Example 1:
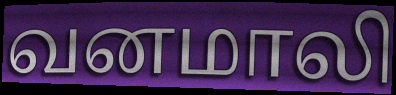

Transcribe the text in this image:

வனமாலி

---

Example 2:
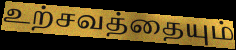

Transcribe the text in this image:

உற்சவத்தையும்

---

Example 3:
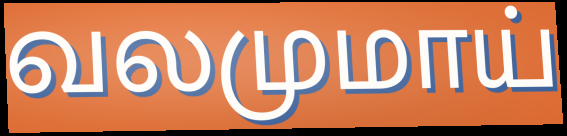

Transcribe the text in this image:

வலமுமாய்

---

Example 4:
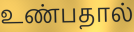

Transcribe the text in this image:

உண்பதால்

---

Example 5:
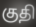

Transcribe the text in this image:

குதி